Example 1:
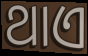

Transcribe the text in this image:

ଥାଏ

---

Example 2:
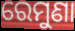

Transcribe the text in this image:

ରେମୁଣା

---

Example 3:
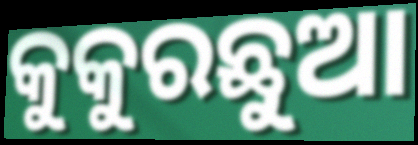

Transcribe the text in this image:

କୁକୁରଛୁଆ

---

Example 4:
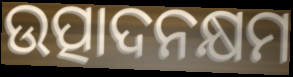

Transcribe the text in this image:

ଉତ୍ପାଦନକ୍ଷମ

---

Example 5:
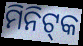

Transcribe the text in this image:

ମିନିଟ୍‌କ